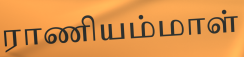
ராணியம்மாள்